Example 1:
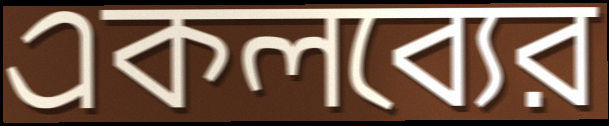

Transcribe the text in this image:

একলব্যের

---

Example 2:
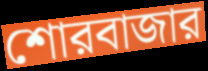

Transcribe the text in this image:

শোরবাজার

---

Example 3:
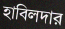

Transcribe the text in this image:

হাবিলদার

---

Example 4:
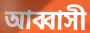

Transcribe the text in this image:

আব্বাসী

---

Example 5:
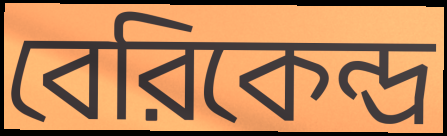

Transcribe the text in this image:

বেরিকেন্দ্র